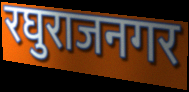
रघुराजनगर